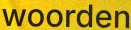
woorden